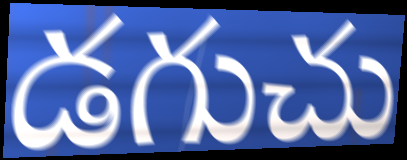
డగుచు